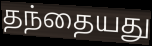
தந்தையது